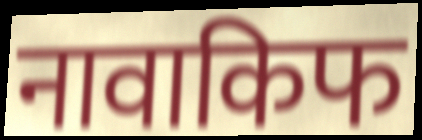
नावाकिफ